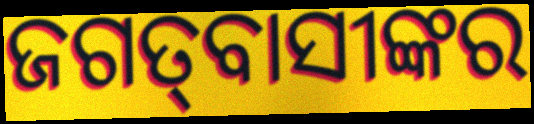
ଜଗତ୍‍ବାସୀଙ୍କର